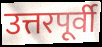
उत्तरपूर्वी